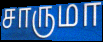
சாருமா